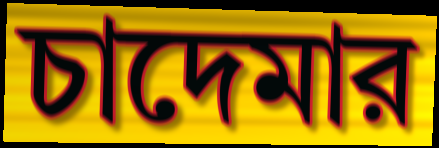
চাদেমার